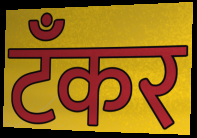
टॅँकर